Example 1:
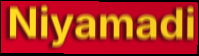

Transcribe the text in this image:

Niyamadi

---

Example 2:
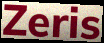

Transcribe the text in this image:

Zeris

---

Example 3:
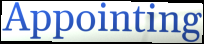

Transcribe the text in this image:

Appointing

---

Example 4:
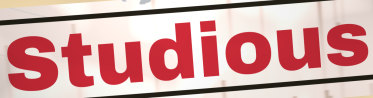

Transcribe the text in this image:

Studious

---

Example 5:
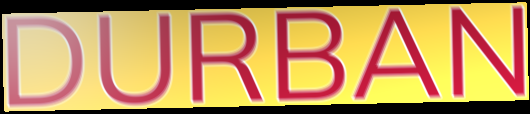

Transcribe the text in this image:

DURBAN